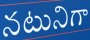
నటునిగా